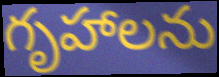
గృహాలను